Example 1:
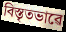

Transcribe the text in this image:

বিস্তৃতভাৱে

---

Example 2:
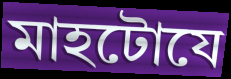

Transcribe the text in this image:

মাহটোযে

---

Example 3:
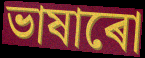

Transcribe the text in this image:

ভাষাৰো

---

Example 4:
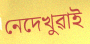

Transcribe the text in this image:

নেদেখুৱাই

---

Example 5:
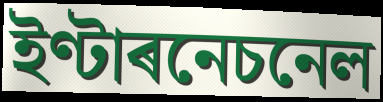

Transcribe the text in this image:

ইণ্টাৰনেচনেল